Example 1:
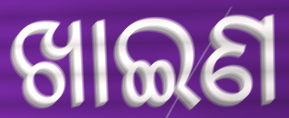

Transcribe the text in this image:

ଖାଇଣ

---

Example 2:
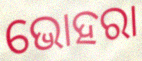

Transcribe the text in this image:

ଭୋହରା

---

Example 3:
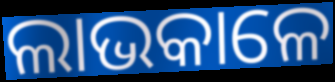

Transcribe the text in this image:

ଲାଭକାଳେ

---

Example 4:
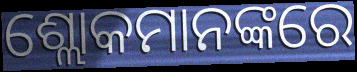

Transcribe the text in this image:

ଶ୍ଲୋକମାନଙ୍କରେ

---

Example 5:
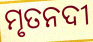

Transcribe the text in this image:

ମୃତନଦୀ